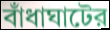
বাঁধাঘাটের